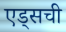
एड्सची